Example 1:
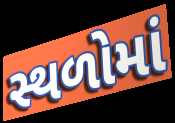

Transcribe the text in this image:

સ્થળોમાં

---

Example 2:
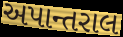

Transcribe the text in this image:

અપાન્તરાલ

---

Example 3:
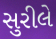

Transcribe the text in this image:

સુરીલે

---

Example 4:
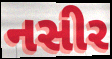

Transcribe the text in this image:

નસીર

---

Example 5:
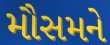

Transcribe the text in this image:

મૌસમને